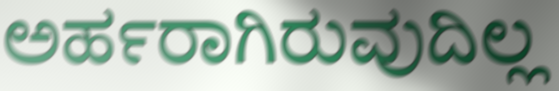
ಅರ್ಹರಾಗಿರುವುದಿಲ್ಲ